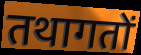
तथागतों